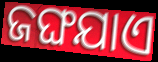
ଜଙ୍ଘଯାଏ